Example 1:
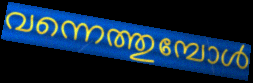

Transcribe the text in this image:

വന്നെത്തുമ്പോൾ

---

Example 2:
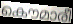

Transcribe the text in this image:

കൌമാരീ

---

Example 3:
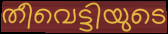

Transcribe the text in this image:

തീവെട്ടിയുടെ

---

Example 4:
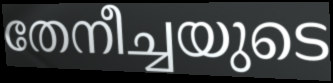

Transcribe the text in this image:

തേനീച്ചയുടെ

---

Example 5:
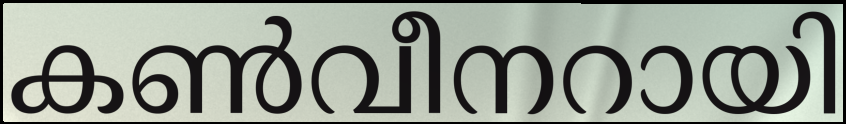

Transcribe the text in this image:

കൺവീനറായി